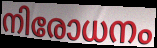
നിരോധനം